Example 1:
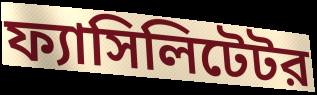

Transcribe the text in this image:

ফ্যাসিলিটেটর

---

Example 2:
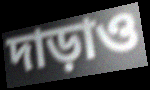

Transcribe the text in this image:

দাড়াও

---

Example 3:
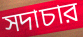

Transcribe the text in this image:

সদাচার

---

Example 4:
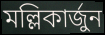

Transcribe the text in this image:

মল্লিকার্জুন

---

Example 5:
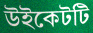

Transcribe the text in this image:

উইকেটটি